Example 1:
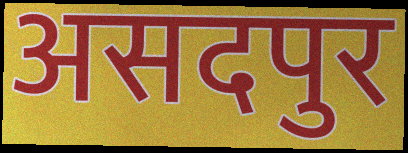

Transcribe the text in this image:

असदपुर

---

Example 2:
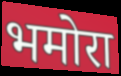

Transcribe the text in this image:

भमोरा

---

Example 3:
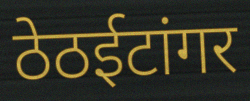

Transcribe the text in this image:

ठेठईटांगर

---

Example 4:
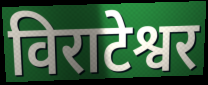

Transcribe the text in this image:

विराटेश्वर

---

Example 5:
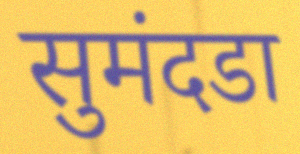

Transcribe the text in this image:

सुमंदडा